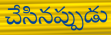
చేసినప్పుడు